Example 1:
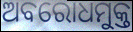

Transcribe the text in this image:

ଅବରୋଧମୁକ୍ତ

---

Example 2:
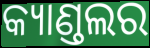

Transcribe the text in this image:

କ୍ୟାଣ୍ଡଲର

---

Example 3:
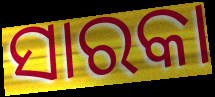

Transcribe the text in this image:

ସାରକା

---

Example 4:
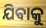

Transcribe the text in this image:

ଯିଵାକୁ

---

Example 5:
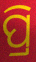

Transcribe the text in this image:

ପ୍ରି